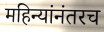
महिन्यांनंतरच